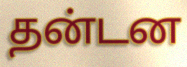
தன்டன